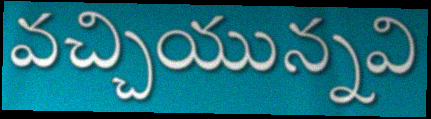
వచ్చియున్నవి